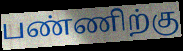
பண்ணிற்கு